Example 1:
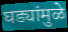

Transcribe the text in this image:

घड्यांमुळे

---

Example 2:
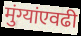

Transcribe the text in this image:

मुंग्यांएवढी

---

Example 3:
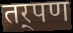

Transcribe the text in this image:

तर्पण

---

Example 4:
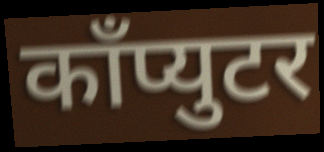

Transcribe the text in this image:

काँप्युटर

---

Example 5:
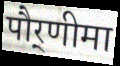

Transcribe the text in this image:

पौर्णीमा